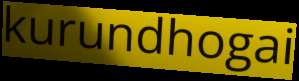
kurundhogai